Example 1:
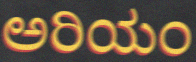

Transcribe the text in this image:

ಅರಿಯಂ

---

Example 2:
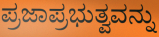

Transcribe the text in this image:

ಪ್ರಜಾಪ್ರಭುತ್ವವನ್ನು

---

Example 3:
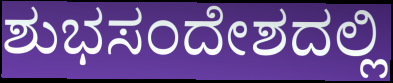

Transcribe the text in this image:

ಶುಭಸಂದೇಶದಲ್ಲಿ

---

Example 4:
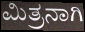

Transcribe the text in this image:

ಮಿತ್ರನಾಗಿ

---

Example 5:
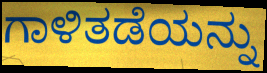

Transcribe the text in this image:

ಗಾಳಿತಡೆಯನ್ನು